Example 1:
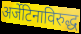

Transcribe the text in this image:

अर्जेटिनाविरुद्ध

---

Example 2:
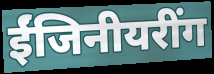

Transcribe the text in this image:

ईंजिनीयरींग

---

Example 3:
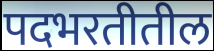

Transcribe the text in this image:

पदभरतीतील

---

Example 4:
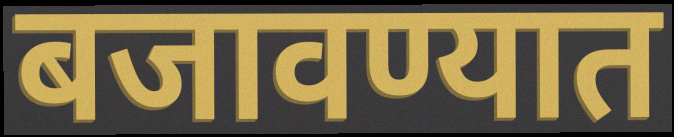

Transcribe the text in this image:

बजावण्यात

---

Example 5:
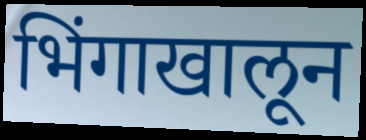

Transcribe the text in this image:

भिंगाखालून